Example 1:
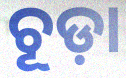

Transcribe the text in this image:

ଚୂଡ଼ା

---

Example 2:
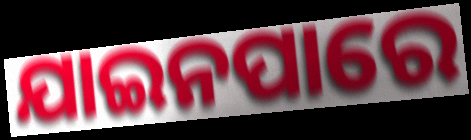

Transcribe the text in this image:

ଯାଇନପାରେ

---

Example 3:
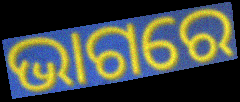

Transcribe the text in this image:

ଭାଗରେ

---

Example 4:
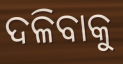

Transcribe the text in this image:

ଦଳିବାକୁ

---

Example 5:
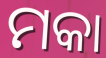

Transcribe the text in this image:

ମକା